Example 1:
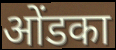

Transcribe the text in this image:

ओंडका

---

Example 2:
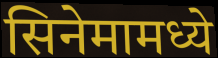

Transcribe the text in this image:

सिनेमामध्ये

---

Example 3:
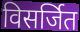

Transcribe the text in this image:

विसर्जित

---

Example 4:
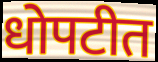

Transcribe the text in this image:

धोपटीत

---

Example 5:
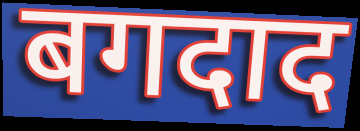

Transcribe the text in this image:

बगदाद